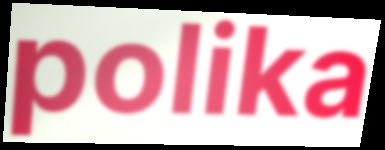
polika